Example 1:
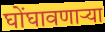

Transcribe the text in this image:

घोंघावणाऱ्या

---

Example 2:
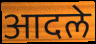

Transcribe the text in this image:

आदले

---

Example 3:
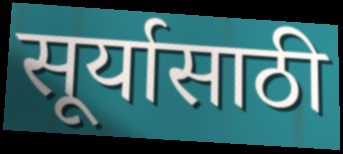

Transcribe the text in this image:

सूर्यासाठी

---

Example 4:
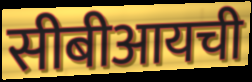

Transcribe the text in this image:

सीबीआयची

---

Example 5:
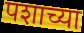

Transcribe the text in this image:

पशाच्या